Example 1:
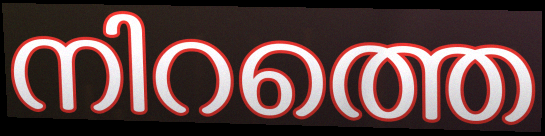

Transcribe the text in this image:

നിറത്തെ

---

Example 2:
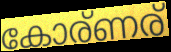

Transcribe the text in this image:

കോര്ണര്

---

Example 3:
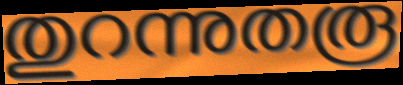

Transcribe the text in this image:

തുറന്നുതരൂ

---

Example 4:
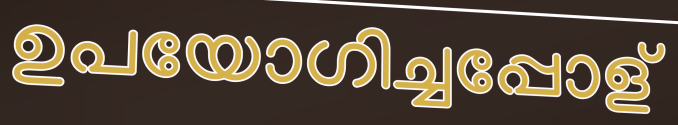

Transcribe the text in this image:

ഉപയോഗിച്ചപ്പോള്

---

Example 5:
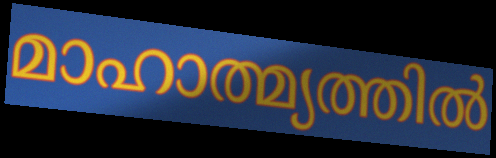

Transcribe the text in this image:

മാഹാത്മ്യത്തിൽ